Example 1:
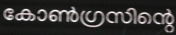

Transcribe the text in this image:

കോൺഗ്രസിന്റെ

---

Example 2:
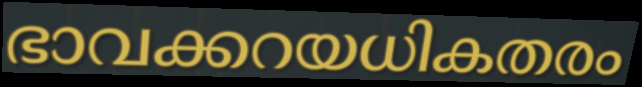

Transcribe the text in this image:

ഭാവക്കറയധികതരം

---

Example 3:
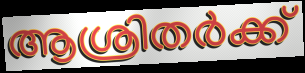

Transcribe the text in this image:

ആശ്രിതർക്ക്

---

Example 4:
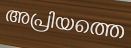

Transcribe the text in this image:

അപ്രിയത്തെ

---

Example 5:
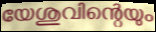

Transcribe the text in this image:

യേശുവിന്റെയും